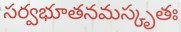
సర్వభూతనమస్కృతః